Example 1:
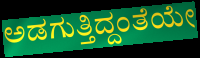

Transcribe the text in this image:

ಅಡಗುತ್ತಿದ್ದಂತೆಯೇ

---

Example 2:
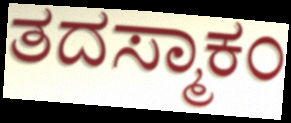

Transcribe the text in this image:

ತದಸ್ಮಾಕಂ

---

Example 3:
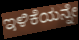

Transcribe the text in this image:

ಇಳಿಕೆಯನ್ನೇ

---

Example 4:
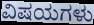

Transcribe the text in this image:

ವಿಷಯಗಳು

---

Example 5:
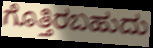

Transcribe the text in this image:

ಗೊತ್ತಿರಬಹುದು